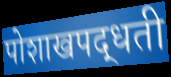
पोशाखपद्धती